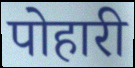
पोहारी